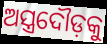
ଅସ୍ତ୍ରଦୌଡ଼କୁ